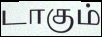
டாகும்